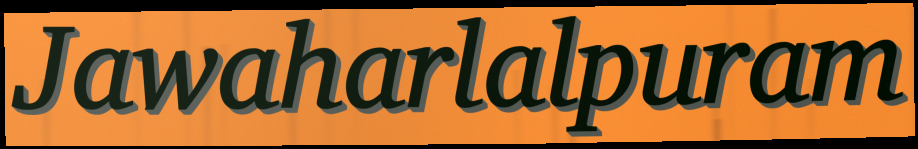
Jawaharlalpuram